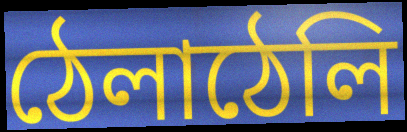
ঠেলাঠেলি